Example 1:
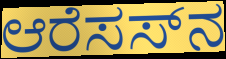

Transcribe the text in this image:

ಆರೆಸಸ್‌ನ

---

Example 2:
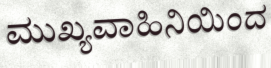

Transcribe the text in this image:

ಮುಖ್ಯವಾಹಿನಿಯಿಂದ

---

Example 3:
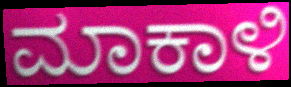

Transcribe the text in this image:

ಮಾಕಾಳಿ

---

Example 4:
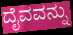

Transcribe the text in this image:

ದೈವವನ್ನು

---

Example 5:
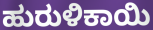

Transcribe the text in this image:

ಹುರುಳಿಕಾಯಿ